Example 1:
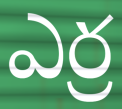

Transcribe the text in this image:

ఎర్ర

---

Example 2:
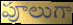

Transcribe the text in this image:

పూలుగా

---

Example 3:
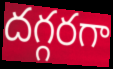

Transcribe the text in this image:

దగ్గరగా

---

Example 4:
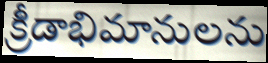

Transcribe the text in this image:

క్రీడాభిమానులను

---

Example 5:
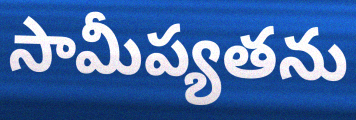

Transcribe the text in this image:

సామీప్యతను